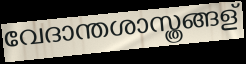
വേദാന്തശാസ്ത്രങ്ങള്